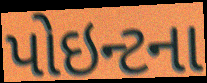
પોઇન્ટના